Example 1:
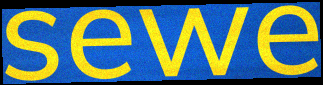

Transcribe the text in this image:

sewe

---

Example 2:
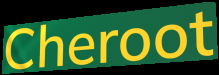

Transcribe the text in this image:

Cheroot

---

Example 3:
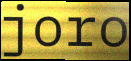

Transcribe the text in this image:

joro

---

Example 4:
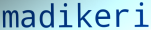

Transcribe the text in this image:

madikeri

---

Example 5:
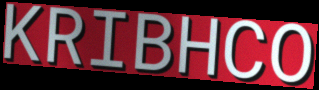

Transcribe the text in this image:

KRIBHCO